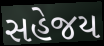
સહેજય